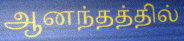
ஆனந்தத்தில்